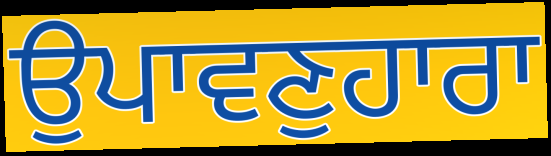
ਉਪਾਵਣੁਹਾਰਾ